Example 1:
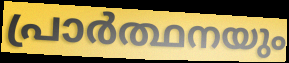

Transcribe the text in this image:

പ്രാർത്ഥനയും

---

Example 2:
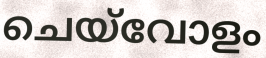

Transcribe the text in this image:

ചെയ്‌വോളം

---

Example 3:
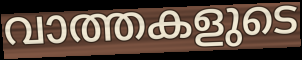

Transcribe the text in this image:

വാത്തകളുടെ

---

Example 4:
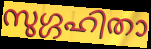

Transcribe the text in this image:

സുഗ്ഗഹിതാ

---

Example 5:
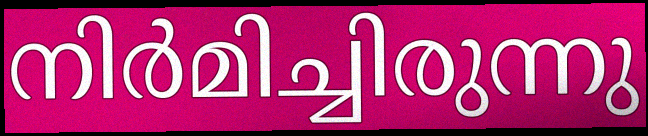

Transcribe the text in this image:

നിർമിച്ചിരുന്നു